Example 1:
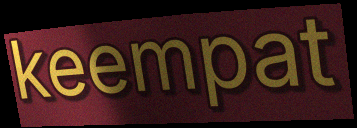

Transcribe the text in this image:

keempat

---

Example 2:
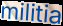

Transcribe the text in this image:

militia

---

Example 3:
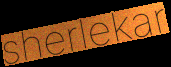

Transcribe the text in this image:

sherlekar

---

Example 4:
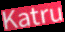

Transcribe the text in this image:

Katru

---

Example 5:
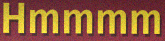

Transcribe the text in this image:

Hmmmm